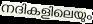
നദികളിലെയും